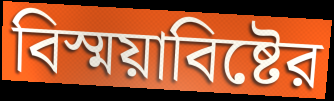
বিস্ময়াবিষ্টের